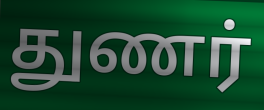
துணர்